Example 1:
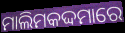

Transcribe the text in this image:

ମାଲିମକଦ୍ଦମାରେ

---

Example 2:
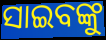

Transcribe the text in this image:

ସାଇବଙ୍କୁ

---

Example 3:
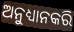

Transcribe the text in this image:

ଅନୁଧ୍ୟାନକରି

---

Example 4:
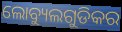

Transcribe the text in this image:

ଲୋବ୍ୟୁଲଗୁଡିକର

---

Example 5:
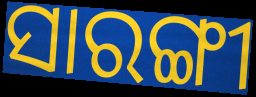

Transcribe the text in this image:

ସାରଙ୍ଗୀ